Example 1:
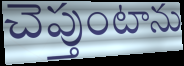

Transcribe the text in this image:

చెప్తుంటాను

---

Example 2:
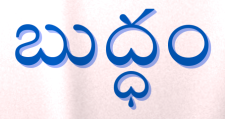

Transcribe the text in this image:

బుద్ధం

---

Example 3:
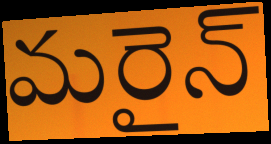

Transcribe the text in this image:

మరైన్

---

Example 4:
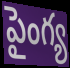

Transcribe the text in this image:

పైంగ్య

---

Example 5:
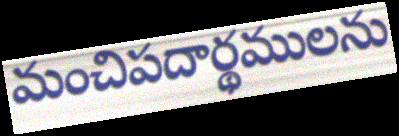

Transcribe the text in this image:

మంచిపదార్థములను